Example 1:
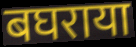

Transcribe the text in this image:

बघराया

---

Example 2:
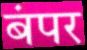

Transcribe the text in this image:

बंपर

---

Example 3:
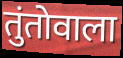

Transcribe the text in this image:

तुंतोवाला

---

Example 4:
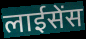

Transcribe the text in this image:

लाईसेंस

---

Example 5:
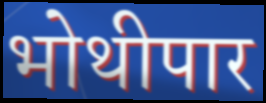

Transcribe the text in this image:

भोथीपार